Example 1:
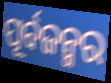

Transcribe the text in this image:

ପୂର୍ବଜନ୍ମର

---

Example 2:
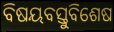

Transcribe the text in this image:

ବିଷୟବସ୍ତୁବିଶେଷ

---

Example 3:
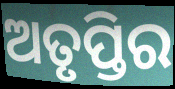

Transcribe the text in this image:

ଅତୃପ୍ତିର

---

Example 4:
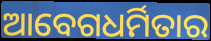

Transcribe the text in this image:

ଆବେଗଧର୍ମିତାର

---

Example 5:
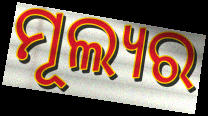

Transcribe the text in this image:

ମୂଲ୍ୟର